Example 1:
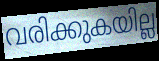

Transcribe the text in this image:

വരിക്കുകയില്ല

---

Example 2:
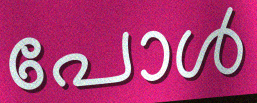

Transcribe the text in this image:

പോൾ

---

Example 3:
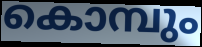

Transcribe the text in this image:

കൊമ്പും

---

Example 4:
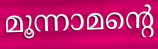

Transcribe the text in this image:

മൂന്നാമന്റെ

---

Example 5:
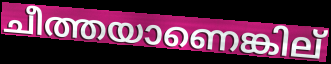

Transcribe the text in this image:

ചീത്തയാണെങ്കില്